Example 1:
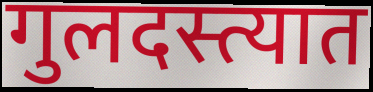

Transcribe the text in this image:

गुलदस्त्यात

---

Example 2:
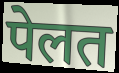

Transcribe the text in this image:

पेलत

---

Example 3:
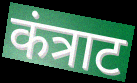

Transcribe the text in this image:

कंत्राट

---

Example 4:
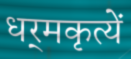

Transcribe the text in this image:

धर्मकृत्यें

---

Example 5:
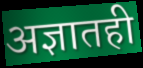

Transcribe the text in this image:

अज्ञातही